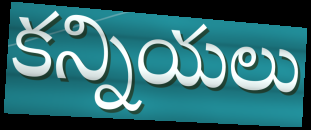
కన్నియలు